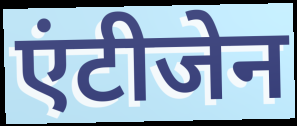
एंटीजेन